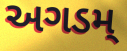
અગડમ્